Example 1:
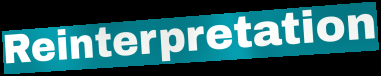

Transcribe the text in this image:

Reinterpretation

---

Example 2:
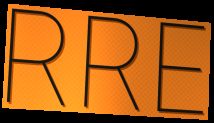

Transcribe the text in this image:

RRE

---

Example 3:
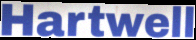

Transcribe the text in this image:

Hartwell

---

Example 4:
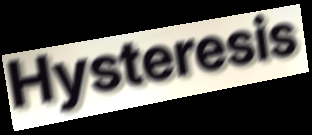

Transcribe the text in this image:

Hysteresis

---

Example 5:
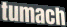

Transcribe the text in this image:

tumach